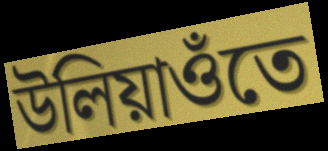
উলিয়াওঁতে